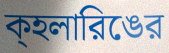
ক্হলারিঙের